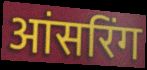
आंसरिंग